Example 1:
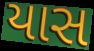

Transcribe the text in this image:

યાસ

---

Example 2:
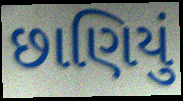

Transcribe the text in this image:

છાણિયું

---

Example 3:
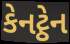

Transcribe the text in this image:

કેનટ્ઠેન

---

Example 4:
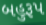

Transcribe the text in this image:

બહુરૂપ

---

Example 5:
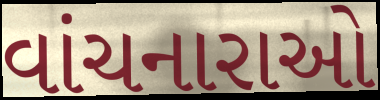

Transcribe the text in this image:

વાંચનારાઓ